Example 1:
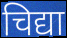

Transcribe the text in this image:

चिद्या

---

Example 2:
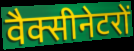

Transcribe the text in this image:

वैक्सीनेटरों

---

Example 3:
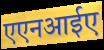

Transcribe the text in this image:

एएनआईए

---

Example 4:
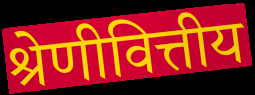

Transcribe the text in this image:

श्रेणीवित्तीय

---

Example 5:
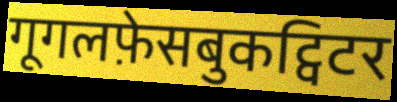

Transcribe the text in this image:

गूगलफ़ेसबुकट्विटर